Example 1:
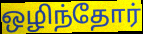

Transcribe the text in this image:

ஒழிந்தோர்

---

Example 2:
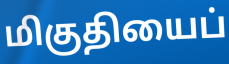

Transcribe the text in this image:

மிகுதியைப்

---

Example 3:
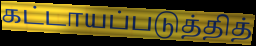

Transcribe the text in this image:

கட்டாயப்படுத்தித்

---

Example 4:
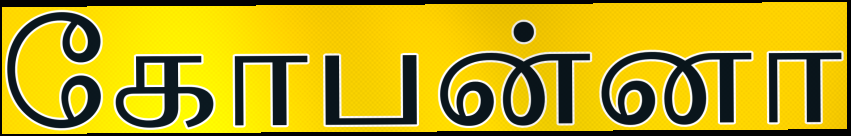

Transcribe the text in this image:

கோபன்னா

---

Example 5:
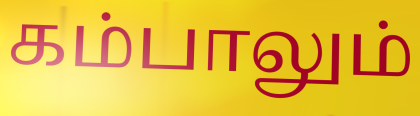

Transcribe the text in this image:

கம்பாலும்